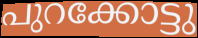
പുറക്കോട്ടു